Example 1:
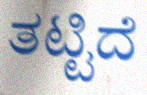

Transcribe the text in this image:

ತಟ್ಟಿದೆ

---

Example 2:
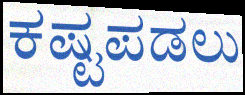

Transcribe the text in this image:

ಕಷ್ಟಪಡಲು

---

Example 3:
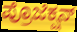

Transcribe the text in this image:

ಪ್ರೊಜೆಕ್ಷನ್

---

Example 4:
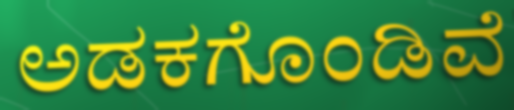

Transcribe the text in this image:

ಅಡಕಗೊಂಡಿವೆ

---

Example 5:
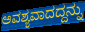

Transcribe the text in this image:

ಅವಶ್ಯವಾದದ್ದನ್ನು